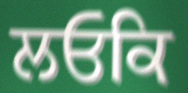
ਲਓਕਿ